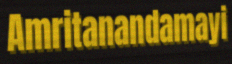
Amritanandamayi